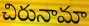
చిరునామా